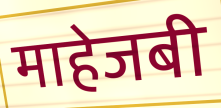
माहेजबी